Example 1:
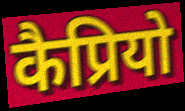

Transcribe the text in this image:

कैप्रियो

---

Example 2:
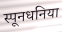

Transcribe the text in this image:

स्पूनधनिया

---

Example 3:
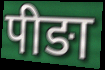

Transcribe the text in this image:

पीङा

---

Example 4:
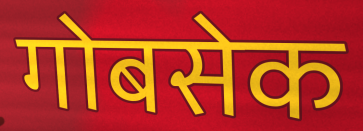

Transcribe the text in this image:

गोबसेक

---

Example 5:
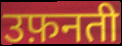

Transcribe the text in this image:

उफ़नती